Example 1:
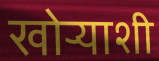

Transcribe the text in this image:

खोऱ्याशी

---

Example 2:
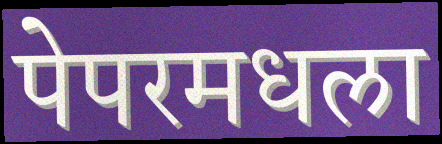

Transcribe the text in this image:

पेपरमधला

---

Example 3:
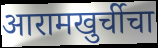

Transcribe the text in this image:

आरामखुर्चीचा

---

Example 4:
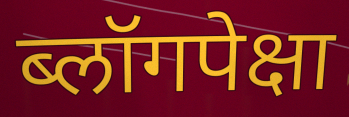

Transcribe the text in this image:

ब्लॉगपेक्षा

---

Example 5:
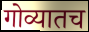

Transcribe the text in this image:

गोव्यातच